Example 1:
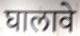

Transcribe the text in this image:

घालावे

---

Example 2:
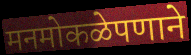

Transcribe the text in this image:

मनमोकळेपणाने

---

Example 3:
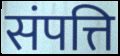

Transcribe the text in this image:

संपत्ति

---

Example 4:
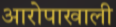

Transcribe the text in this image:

आरोपाखाली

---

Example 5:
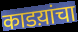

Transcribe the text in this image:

काडय़ांचा